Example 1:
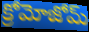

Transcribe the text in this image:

క్రోమోజోమ్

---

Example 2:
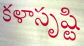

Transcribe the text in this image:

కళాసృష్టి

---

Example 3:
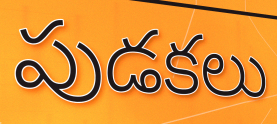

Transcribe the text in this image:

పుడకలు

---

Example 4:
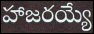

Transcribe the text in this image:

హాజరయ్యే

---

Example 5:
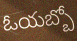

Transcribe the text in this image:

ఓయబ్బో